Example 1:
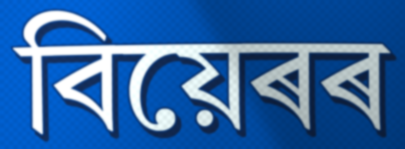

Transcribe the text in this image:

বিয়েৰৰ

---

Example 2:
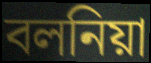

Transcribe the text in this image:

বলনিয়া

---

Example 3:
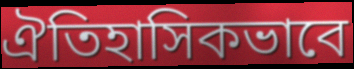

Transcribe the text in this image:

ঐতিহাসিকভাবে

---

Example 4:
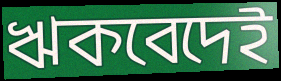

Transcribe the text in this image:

ঋকবেদেই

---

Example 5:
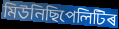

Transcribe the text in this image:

মিউনিছিপেলিটিৰ